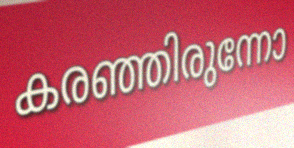
കരഞ്ഞിരുന്നോ